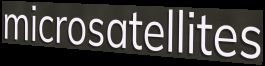
microsatellites